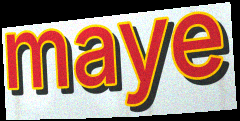
maye